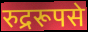
रुद्ररूपसे